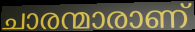
ചാരന്മാരാണ്